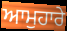
ਆਮੁਹਾਰੇ